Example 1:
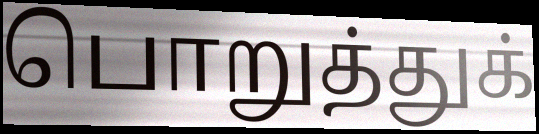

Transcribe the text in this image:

பொறுத்துக்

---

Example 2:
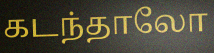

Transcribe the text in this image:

கடந்தாலோ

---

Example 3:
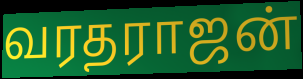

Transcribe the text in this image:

வரதராஜன்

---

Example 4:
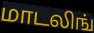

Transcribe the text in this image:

மாடலிங்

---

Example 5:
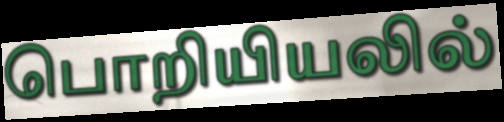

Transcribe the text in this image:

பொறியியலில்